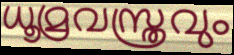
ധൂമ്രവസ്ത്രവും